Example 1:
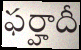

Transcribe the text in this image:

ఫర్హాదీ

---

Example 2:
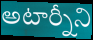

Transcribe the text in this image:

అటార్నీని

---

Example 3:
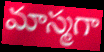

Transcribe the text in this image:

మాస్మగా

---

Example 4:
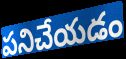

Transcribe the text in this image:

పనిచేయడం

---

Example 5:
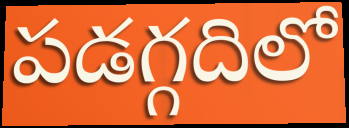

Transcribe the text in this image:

పడగ్గదిలో